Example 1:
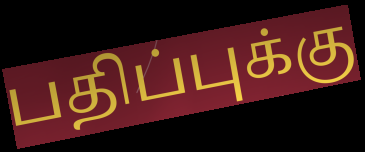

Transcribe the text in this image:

பதிப்புக்கு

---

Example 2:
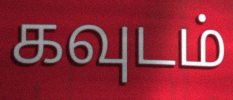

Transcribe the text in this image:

கவுடம்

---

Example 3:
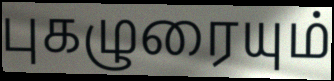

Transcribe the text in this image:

புகழுரையும்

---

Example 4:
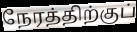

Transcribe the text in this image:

நேரத்திற்குப்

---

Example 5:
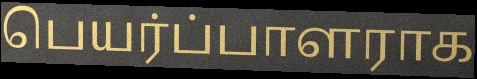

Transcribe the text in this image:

பெயர்ப்பாளராக